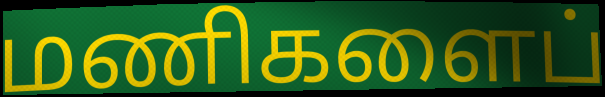
மணிகளைப்